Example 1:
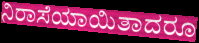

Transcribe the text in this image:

ನಿರಾಸೆಯಾಯಿತಾದರೂ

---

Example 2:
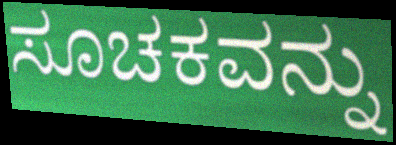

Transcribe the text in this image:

ಸೂಚಕವನ್ನು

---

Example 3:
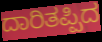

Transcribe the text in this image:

ದಾರಿತಪ್ಪಿದ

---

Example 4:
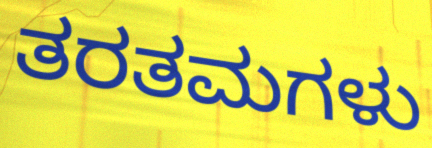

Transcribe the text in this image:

ತರತಮಗಳು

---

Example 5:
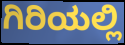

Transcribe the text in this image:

ಗಿರಿಯಲ್ಲಿ